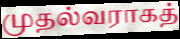
முதல்வராகத்